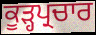
ਕੂੜ੍ਹਪ੍ਰਚਾਰ